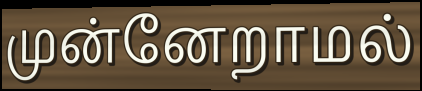
முன்னேறாமல்